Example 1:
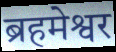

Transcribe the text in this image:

ब्रहमेश्वर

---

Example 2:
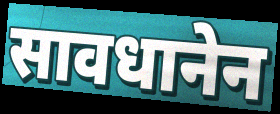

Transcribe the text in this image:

सावधानेन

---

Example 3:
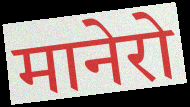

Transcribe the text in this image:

मानेरो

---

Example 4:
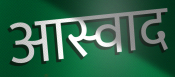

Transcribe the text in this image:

आस्‍वाद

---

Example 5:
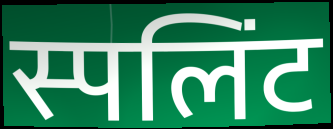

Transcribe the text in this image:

स्पलिंट